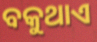
ବକୁଥାଏ